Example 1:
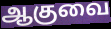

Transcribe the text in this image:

ஆகுவை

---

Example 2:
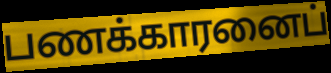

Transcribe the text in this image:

பணக்காரனைப்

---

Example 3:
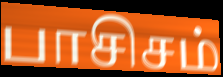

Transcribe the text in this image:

பாசிசம்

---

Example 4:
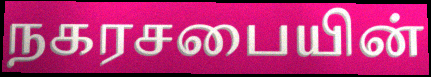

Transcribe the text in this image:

நகரசபையின்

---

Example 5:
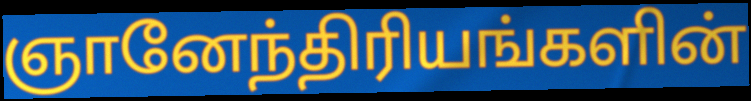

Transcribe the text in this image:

ஞானேந்திரியங்களின்